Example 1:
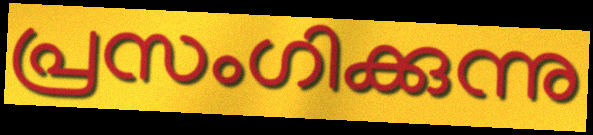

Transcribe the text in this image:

പ്രസംഗിക്കുന്നു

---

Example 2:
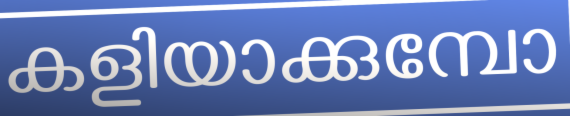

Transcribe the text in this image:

കളിയാക്കുമ്പോ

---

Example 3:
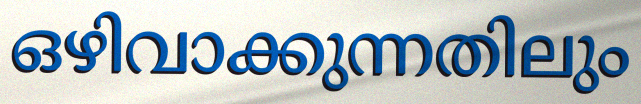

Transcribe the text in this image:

ഒഴിവാക്കുന്നതിലും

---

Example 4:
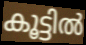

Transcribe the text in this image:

കൂട്ടിൽ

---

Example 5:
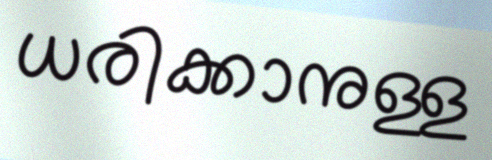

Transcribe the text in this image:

ധരിക്കാനുള്ള